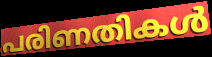
പരിണതികൾ